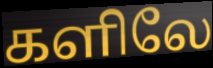
களிலே